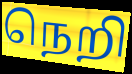
நெறி